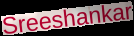
Sreeshankar